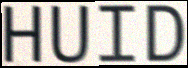
HUID